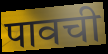
पावची